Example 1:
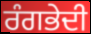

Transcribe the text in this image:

ਰੰਗਭੇਦੀ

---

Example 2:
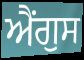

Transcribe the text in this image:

ਐਂਗੁਸ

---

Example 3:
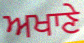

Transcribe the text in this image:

ਅਖਾਣੇ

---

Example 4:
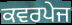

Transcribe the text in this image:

ਕਵਰਪੇਜ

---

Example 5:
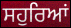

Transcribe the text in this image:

ਸਹੁਰਿਆਂ